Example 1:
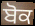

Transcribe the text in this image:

ਬੋਕ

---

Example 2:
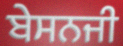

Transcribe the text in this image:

ਬੇਸਨਜੀ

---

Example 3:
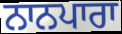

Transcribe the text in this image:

ਨਾਨਪਾਰਾ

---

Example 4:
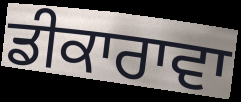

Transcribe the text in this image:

ਡੀਕਾਰਾਵਾ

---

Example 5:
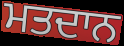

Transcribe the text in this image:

ਮਤਦਾਨ